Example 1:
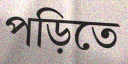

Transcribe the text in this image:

পড়িতে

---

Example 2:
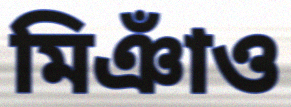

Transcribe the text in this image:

মিঞাঁও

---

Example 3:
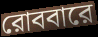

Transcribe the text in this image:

রোববারে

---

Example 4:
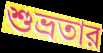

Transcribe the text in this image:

শুভ্রতার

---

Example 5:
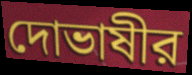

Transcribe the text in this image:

দোভাষীর